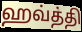
ஹவ்த்தி